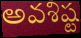
అవశిష్ట